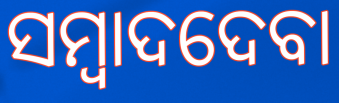
ସମ୍ବାଦଦେବା